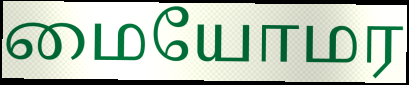
மையோமர